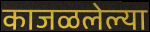
काजळलेल्या